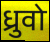
ध्रुवो